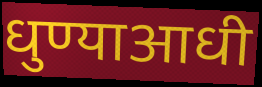
धुण्याआधी